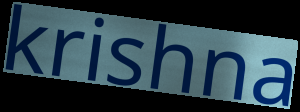
krishna